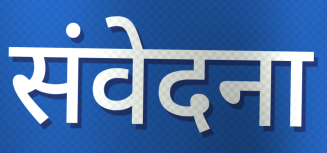
संवेदना